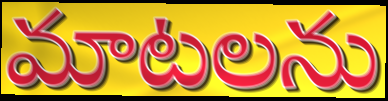
మాటలను